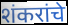
शंकरांचे